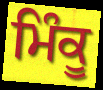
ਮਿੰਕੂ